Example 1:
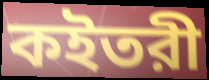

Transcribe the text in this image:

কইতরী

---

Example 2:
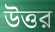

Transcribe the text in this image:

উত্তর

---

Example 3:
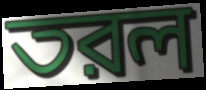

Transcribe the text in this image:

তরল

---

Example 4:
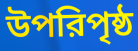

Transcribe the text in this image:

উপরিপৃষ্ঠ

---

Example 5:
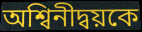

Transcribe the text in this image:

অশ্বিনীদ্বয়কে